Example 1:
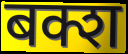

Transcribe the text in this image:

बक्श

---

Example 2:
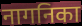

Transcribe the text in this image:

नागनिका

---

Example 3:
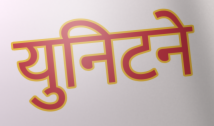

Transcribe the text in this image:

युनिटने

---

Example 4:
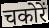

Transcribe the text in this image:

चकोरें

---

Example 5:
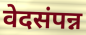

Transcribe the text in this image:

वेदसंपन्न